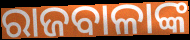
ରାଜବାଳାଙ୍କ